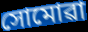
সোমোৱা